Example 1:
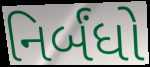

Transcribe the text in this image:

નિર્બંધો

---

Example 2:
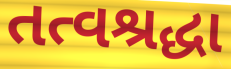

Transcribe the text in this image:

તત્વશ્રદ્ધા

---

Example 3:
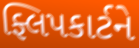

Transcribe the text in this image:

ફ્લિપકાર્ટને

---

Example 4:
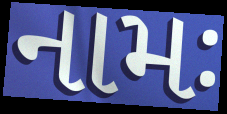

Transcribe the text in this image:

નામઃ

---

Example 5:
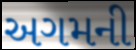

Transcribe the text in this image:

અગમની